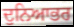
ਦੁਨਿਆਭਰ